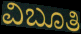
ವಿಬೂತಿ